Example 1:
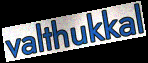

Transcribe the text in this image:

valthukkal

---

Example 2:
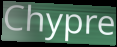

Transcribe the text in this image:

Chypre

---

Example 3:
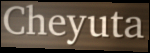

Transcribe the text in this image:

Cheyuta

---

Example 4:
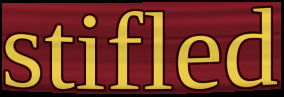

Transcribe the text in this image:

stifled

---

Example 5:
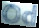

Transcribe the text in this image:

Od